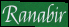
Ranabir